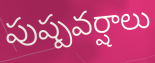
పుష్పవర్షాలు